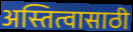
अस्तित्वासाठी